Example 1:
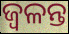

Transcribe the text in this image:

ଜ୍ବଳନ୍ତ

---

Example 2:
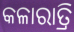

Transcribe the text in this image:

କଳାରାତ୍ରି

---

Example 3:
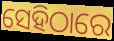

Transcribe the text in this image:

ସେହିଠାରେ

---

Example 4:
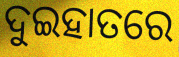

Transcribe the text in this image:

ଦୁଇହାତରେ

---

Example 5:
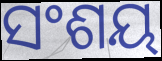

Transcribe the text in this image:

ସଂଶୟ